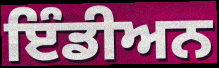
ਇੰਡੀਅਨ